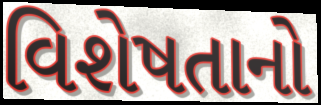
વિશેષતાનો